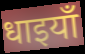
धाइयाँ